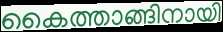
കൈത്താങ്ങിനായി